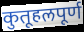
कुतूहलपूर्ण